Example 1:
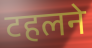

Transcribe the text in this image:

टहलने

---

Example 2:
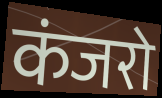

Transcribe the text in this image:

कंजरो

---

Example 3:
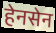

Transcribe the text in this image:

हेनसेन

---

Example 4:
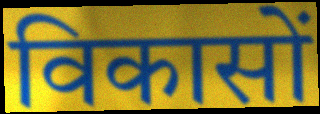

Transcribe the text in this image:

विकासों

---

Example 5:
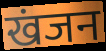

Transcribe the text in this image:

खंजन